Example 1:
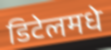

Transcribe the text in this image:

डिटेलमधे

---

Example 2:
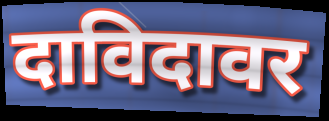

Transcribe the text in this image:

दाविदावर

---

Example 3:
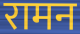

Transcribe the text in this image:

रामन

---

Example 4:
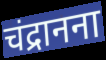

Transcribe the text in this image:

चंद्रानना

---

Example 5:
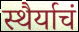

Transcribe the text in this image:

स्थैर्याचं